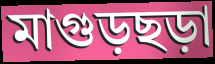
মাগুড়ছড়া